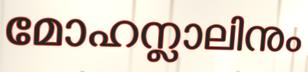
മോഹന്ലാലിനും